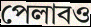
পেলাবও